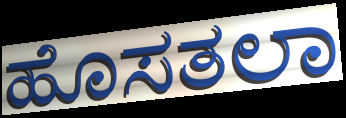
ಹೊಸತಲಾ